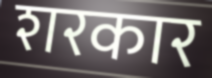
शरकार